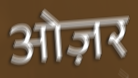
ओज़र